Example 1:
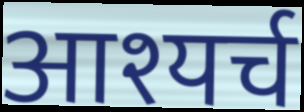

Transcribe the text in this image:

आश्यर्च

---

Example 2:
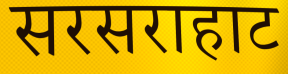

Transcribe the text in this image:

सरसराहाट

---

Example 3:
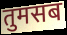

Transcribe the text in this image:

तुमसब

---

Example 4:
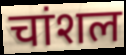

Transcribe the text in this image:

चांशल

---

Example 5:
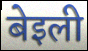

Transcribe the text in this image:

बेइली